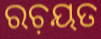
ରଚ଼ୟତ